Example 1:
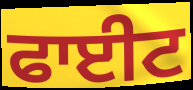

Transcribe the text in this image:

ਫਾਈਟ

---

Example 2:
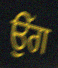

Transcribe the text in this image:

ਉੱਗ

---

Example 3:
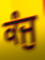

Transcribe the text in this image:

ਕੰਜੁ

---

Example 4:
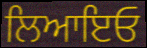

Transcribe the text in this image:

ਲਿਆਇਓ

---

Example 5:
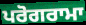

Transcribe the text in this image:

ਪਰੋਗਰਾਮਾ